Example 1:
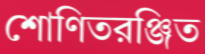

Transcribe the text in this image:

শোণিতরঞ্জিত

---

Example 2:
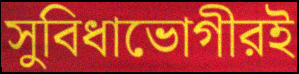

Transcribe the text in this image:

সুবিধাভোগীরই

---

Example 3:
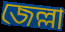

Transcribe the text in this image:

জেল্লা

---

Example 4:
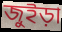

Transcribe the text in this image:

জুইড়া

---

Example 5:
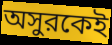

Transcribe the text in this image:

অসুরকেই